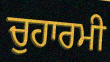
ਚੁਹਾਰਮੀ